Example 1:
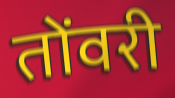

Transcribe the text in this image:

तोंवरी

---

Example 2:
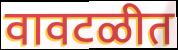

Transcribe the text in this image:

वावटळीत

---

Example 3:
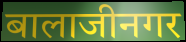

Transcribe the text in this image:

बालाजीनगर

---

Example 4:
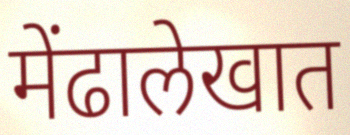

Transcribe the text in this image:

मेंढालेखात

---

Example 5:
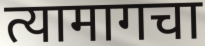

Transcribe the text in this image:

त्यामागचा